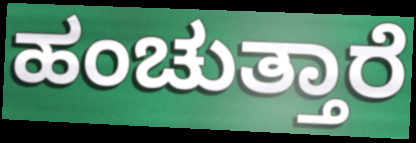
ಹಂಚುತ್ತಾರೆ